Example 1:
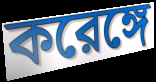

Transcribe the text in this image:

করেঙ্গে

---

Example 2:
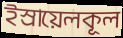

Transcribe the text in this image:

ইস্রায়েলকূল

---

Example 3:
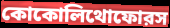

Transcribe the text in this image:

কোকোলিথোফোরস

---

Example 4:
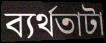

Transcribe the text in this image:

ব্যর্থতাটা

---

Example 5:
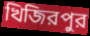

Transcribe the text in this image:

খিজিরপুর